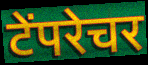
टेंपरेचर